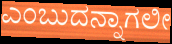
ಎಂಬುದನ್ನಾಗಲೀ